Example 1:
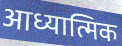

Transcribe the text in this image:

आध्यात्मिक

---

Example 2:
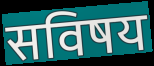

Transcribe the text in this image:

सविषय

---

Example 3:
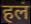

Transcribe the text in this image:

हलं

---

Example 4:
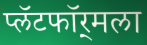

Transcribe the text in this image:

प्लॅटफॉर्मला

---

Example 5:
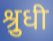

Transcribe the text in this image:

श्रु॒धी